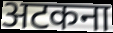
अटकना